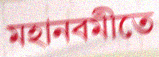
মহানবমীতে